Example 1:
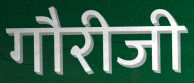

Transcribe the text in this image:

गौरीजी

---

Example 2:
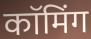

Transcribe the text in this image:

कॉमिंग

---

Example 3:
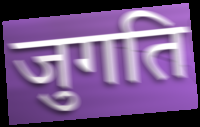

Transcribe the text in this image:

जुगति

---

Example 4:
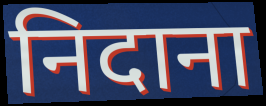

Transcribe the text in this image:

निदाना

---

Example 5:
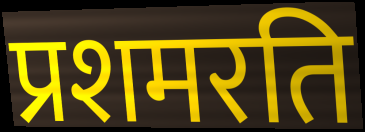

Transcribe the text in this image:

प्रशमरति